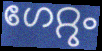
ഗേറ്റും